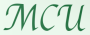
MCU